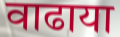
वाढाया